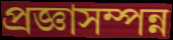
প্রজ্ঞাসম্পন্ন